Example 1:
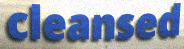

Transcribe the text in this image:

cleansed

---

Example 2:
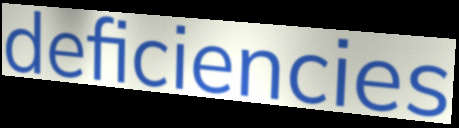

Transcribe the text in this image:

deficiencies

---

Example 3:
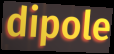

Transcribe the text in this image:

dipole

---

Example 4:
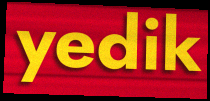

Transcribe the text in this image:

yedik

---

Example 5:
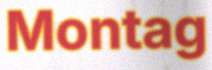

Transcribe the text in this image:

Montag